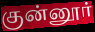
குன்னூர்